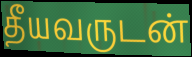
தீயவருடன்